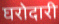
घरोदारी